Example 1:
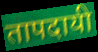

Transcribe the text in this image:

तापदायी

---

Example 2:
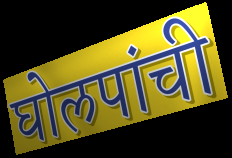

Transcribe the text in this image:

घोलपांची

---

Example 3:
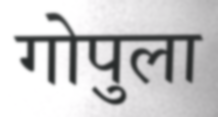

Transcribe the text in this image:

गोपुला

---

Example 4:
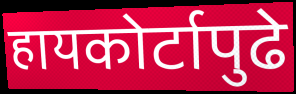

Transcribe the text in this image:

हायकोर्टापुढे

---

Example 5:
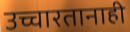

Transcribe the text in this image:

उच्चारतानाही